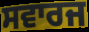
ਸਵਾਰਜ